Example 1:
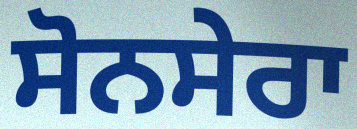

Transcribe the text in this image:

ਸੋਨਸੇਰਾ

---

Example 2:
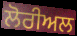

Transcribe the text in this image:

ਲੋਰੀਅਲ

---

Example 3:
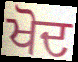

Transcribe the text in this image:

ਖੋਦ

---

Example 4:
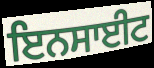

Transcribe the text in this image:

ਇਨਸਾਈਟ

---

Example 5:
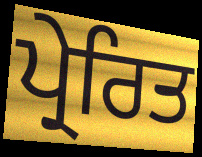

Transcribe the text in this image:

ਪ੍ਰ੍ਰੇਰਿਤ